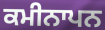
ਕਮੀਨਾਪਨ